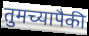
तुमच्यापैकी